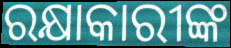
ରକ୍ଷାକାରୀଙ୍କ